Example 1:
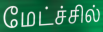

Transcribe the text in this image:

மேட்ச்சில்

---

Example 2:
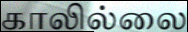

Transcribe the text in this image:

காலில்லை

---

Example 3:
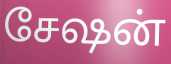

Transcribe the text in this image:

சேஷன்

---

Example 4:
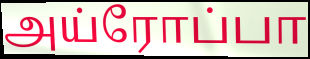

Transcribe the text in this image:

அய்ரோப்பா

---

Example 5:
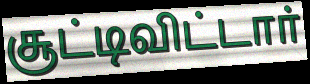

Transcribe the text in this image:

சூட்டிவிட்டார்